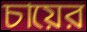
চায়ের